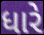
ધારે